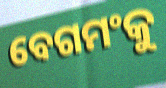
ବେଗମଂକୁ